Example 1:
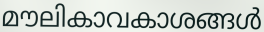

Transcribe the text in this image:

മൗലികാവകാശങ്ങൾ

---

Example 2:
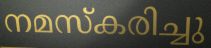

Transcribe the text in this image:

നമസ്കരിച്ചു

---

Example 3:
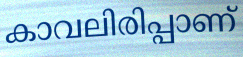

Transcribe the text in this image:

കാവലിരിപ്പാണ്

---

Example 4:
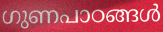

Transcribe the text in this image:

ഗുണപാഠങ്ങൾ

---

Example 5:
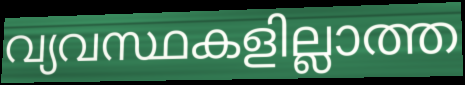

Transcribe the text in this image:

വ്യവസ്ഥകളില്ലാത്ത